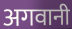
अगवानी